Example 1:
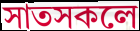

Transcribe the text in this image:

সাতসকলে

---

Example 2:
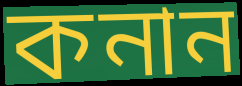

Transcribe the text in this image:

কনান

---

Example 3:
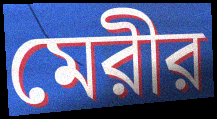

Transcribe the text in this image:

মেরীর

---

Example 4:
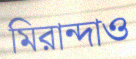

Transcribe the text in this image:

মিরান্দাও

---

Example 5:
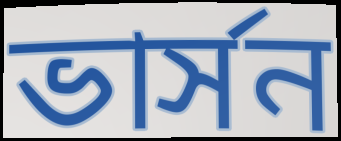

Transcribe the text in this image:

ভার্সন